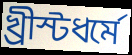
খ্রীস্টধর্মে